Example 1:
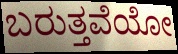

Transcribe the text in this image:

ಬರುತ್ತವೆಯೋ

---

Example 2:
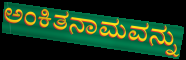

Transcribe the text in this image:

ಅಂಕಿತನಾಮವನ್ನು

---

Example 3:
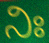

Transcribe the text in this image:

ನಿಃ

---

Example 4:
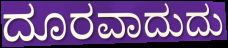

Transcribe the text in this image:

ದೂರವಾದುದು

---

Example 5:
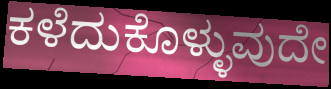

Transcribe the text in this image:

ಕಳೆದುಕೊಳ್ಳುವುದೇ